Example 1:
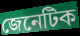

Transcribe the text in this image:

জেনেটিক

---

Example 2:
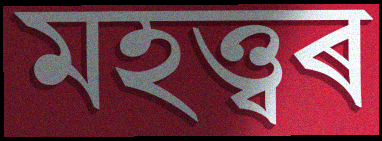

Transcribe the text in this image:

মহত্ত্বৰ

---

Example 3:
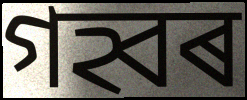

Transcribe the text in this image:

গহ্বৰ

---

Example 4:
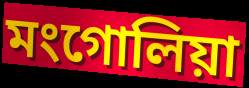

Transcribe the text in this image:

মংগোলিয়া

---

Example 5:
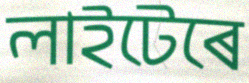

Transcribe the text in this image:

লাইটেৰে